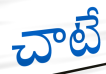
చాటే